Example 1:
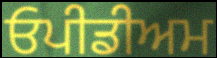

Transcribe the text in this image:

ਓਪੀਡੀਅਮ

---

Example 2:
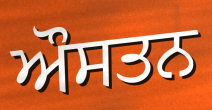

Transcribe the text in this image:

ਔਸਤਨ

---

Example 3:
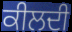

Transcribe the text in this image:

ਕੀਲਦੀ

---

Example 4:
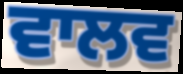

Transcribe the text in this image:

ਵਾਲਵ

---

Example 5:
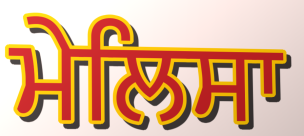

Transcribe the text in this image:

ਮੇਲਿਸਾ